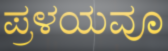
ಪ್ರಳಯವೂ